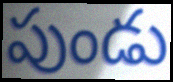
పుండు